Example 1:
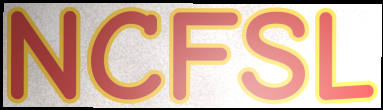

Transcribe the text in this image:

NCFSL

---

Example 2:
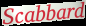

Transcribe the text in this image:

Scabbard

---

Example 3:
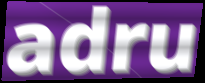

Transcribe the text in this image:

adru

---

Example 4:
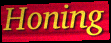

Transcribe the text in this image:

Honing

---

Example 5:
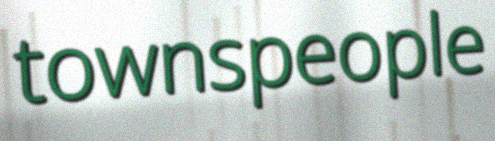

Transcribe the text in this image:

townspeople